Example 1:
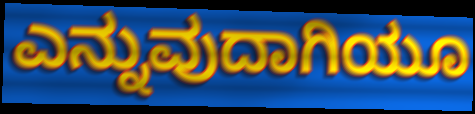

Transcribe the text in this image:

ಎನ್ನುವುದಾಗಿಯೂ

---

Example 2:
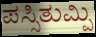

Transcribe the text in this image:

ಪಸ್ಸಿತುಮ್ಪಿ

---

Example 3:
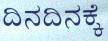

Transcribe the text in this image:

ದಿನದಿನಕ್ಕೆ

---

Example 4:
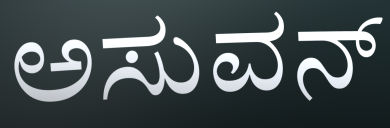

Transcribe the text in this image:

ಅಸುವನ್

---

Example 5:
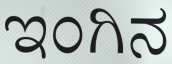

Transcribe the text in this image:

ಇಂಗಿನ